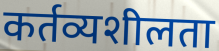
कर्तव्यशीलता